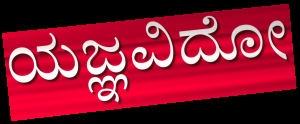
ಯಜ್ಞವಿದೋ